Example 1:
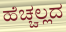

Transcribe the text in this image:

ಹೆಚ್ಚಲ್ಲದ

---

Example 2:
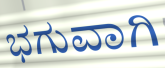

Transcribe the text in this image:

ಭಗುವಾಗಿ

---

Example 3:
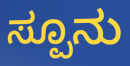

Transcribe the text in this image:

ಸ್ಪೂನು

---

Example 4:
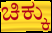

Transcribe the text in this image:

ಚಿಕ್ಕು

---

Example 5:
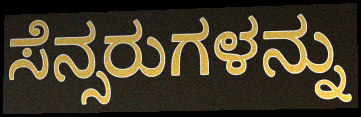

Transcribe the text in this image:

ಸೆನ್ಸರುಗಳನ್ನು